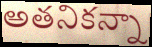
అతనికన్నా